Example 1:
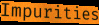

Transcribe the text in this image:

Impurities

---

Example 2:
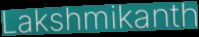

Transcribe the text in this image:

Lakshmikanth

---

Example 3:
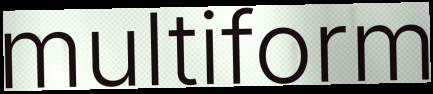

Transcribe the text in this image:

multiform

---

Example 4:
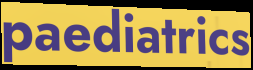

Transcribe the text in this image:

paediatrics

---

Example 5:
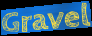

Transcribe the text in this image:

Gravel